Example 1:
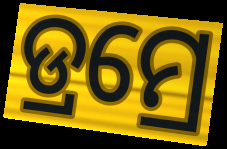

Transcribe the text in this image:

ଡ୍ରମ୍ରେ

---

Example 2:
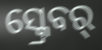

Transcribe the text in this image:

ସ୍କ୍ରେବର୍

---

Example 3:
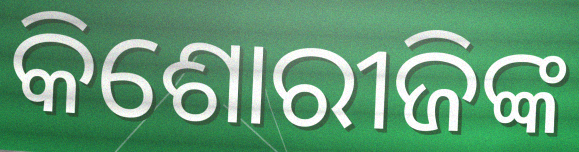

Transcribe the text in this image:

କିଶୋରୀଜିଙ୍କ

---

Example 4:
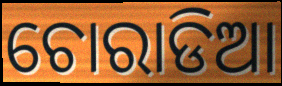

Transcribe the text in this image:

ଚୋରାଡିଆ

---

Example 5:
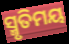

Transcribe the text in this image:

ସ୍ମୃତିମୟ